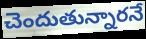
చెందుతున్నారనే